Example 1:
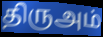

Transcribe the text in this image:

திருஅம்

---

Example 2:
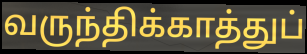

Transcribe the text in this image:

வருந்திக்காத்துப்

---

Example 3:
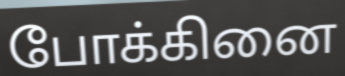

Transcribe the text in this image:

போக்கினை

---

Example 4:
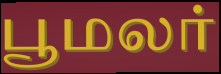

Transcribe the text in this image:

பூமலர்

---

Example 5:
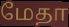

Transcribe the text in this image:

மேதா